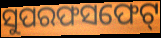
ସୁପରଫସଫେଟ୍